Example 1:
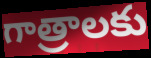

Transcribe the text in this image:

గాత్రాలకు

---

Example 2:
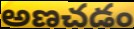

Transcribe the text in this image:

అణచడం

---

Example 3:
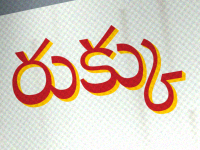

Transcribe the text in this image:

రుక్కు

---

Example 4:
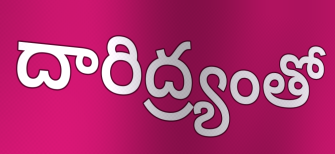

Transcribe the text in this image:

దారిద్ర్యంతో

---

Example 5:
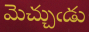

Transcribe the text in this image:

మెచ్చుఁడు